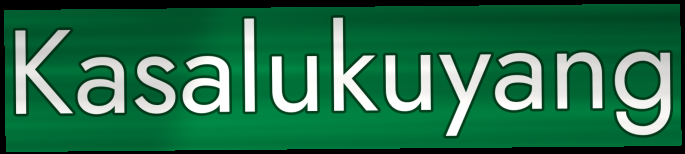
Kasalukuyang